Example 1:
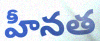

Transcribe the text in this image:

హీనత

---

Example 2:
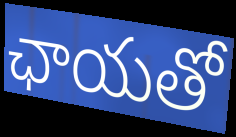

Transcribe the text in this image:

ఛాయతో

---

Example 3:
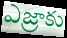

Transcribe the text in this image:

ఎజ్రాకు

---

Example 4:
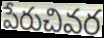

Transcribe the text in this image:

పేరుచివర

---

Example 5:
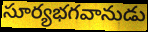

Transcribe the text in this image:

సూర్యభగవానుడు